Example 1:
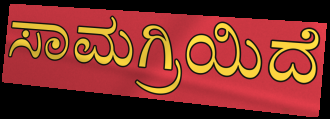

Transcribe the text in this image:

ಸಾಮಗ್ರಿಯಿದೆ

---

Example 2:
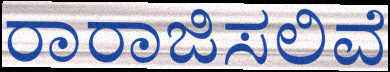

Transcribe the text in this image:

ರಾರಾಜಿಸಲಿವೆ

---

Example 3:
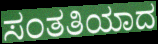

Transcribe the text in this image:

ಸಂತತಿಯಾದ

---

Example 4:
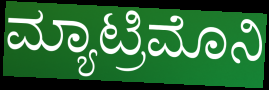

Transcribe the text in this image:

ಮ್ಯಾಟ್ರಿಮೊನಿ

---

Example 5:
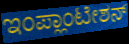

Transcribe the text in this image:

ಇಂಪ್ಲಾಂಟೇಶನ್